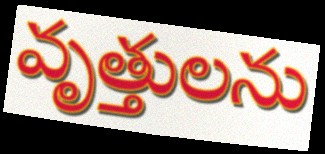
వృత్తులను